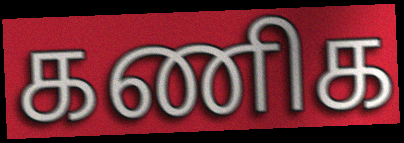
கணிக